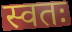
स्वतः